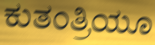
ಕುತಂತ್ರಿಯೂ